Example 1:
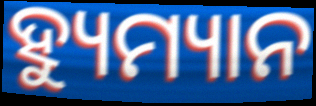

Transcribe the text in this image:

ହ୍ୟୁମ୍ୟାନ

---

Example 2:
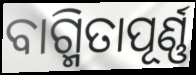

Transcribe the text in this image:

ବାଗ୍ମିତାପୂର୍ଣ୍ଣ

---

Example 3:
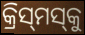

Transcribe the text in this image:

କ୍ରିସ୍‌ମସ୍‌କୁ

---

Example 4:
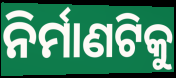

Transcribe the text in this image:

ନିର୍ମାଣଟିକୁ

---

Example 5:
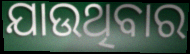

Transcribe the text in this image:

ଯାଉଥିବାର